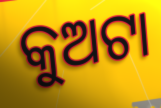
କୁଅଟା